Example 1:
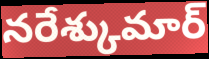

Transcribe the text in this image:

నరేశ్కుమార్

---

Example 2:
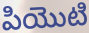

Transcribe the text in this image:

పియొటి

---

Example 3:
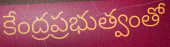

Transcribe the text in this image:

కేంద్రప్రభుత్వంతో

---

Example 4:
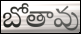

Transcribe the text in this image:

బోతావు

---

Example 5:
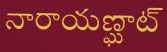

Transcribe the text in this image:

నారాయణ్ఘాట్